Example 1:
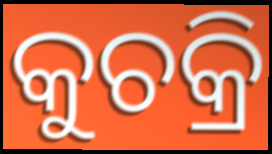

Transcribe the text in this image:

କୁଚକ୍ରି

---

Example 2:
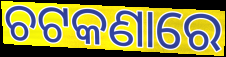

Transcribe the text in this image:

ଚଟକଣାରେ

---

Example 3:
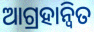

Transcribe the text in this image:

ଆଗ୍ରହାନ୍ୱିତ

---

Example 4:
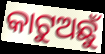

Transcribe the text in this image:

କାଟୁଅଛୁଁ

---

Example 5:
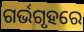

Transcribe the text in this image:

ଗର୍ଭଗୃହରେ